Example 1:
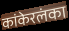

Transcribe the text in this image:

कांकेरलंका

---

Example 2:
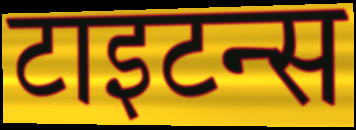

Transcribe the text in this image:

टाइटन्स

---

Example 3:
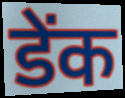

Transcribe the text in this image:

डेंक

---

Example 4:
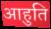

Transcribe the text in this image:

आहुति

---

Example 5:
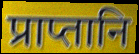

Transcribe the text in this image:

प्राप्तानि